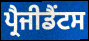
ਪ੍ਰੈਜੀਡੈਂਟਸ